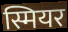
स्मियर